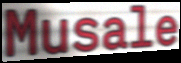
Musale